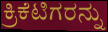
ಕ್ರಿಕೆಟಿಗರನ್ನು